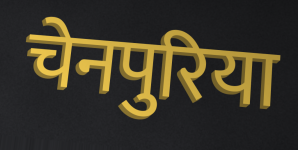
चेनपुरिया